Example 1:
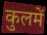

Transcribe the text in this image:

कुलमें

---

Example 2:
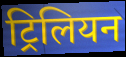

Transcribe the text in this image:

ट्रिलियन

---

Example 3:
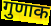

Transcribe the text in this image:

गुणाक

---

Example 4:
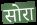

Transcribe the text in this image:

सोरा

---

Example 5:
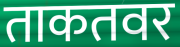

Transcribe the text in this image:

ताकतवर